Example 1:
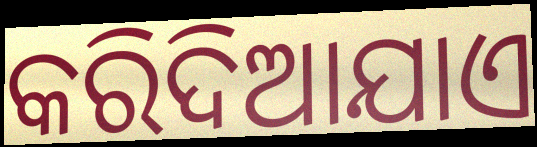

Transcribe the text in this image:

କରିଦିଆଯାଏ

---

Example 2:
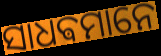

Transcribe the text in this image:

ସାଧଵମାନେ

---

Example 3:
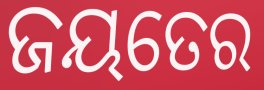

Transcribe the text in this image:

ଜୟତେର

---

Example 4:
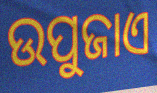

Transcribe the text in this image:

ଉପୁଜାଏ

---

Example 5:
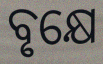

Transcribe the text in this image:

ବୃକ୍ଷେ